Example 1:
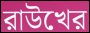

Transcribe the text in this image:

রাউখের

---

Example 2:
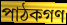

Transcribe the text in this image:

পাঠকগণ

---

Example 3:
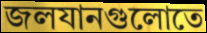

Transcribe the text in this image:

জলযানগুলোতে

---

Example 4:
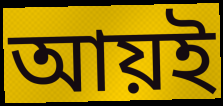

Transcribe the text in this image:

আয়ই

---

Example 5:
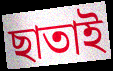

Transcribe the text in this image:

ছাতাই